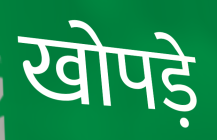
खोपड़े